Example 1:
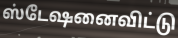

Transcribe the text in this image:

ஸ்டேஷனைவிட்டு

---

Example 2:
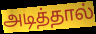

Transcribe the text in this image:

அடித்தால்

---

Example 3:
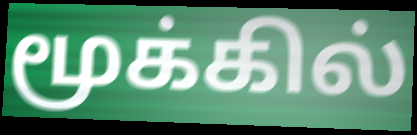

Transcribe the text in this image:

மூக்கில்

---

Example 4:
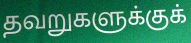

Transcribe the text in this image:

தவறுகளுக்குக்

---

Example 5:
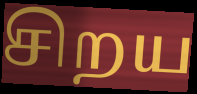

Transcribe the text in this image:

சிறய